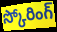
స్కోరింగ్